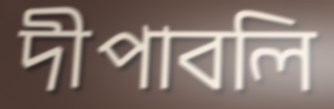
দীপাবলি